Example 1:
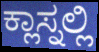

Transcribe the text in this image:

ಕ್ಲಾಸ್ನಲ್ಲಿ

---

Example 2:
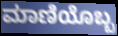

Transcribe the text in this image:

ಮಾಣಿಯೊಬ್ಬ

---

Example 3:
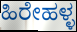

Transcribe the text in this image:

ಹಿರೇಹಳ್ಳ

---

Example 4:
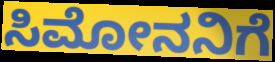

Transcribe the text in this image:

ಸಿಮೋನನಿಗೆ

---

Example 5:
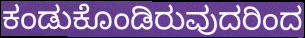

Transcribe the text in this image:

ಕಂಡುಕೊಂಡಿರುವುದರಿಂದ